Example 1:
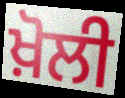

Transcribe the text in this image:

ਖ਼ੋਲੀ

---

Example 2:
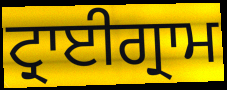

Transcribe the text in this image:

ਟ੍ਰਾਈਗ੍ਰਾਮ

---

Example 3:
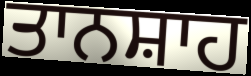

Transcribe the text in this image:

ਤਾਨਸ਼ਾਹ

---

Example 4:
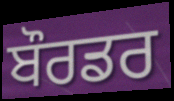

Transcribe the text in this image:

ਬੌਰਡਰ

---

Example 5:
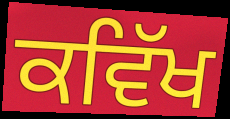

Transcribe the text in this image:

ਕਵਿੱਖ